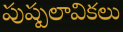
పుష్పలావికలు